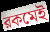
রকমেই